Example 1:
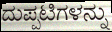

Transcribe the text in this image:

ದುಪ್ಪಟಿಗಳನ್ನು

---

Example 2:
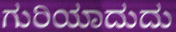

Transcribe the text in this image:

ಗುರಿಯಾದುದು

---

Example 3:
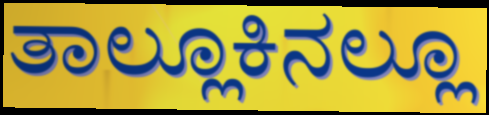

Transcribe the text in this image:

ತಾಲ್ಲೂಕಿನಲ್ಲೂ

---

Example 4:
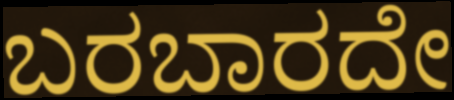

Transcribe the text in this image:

ಬರಬಾರದೇ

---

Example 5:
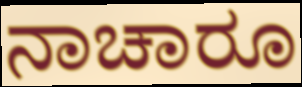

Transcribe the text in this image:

ನಾಚಾರೂ